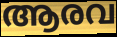
ആരവ